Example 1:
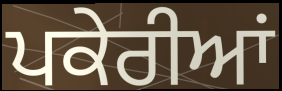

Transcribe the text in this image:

ਪਕੇਰੀਆਂ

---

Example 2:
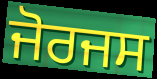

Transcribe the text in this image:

ਜੋਰਜਸ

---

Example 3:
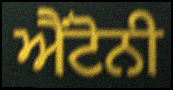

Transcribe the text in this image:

ਐਂਟੋਨੀ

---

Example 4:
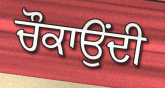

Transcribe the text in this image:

ਚੌਕਾਉਂਦੀ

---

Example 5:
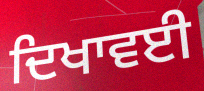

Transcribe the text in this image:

ਦਿਖਾਵਈ